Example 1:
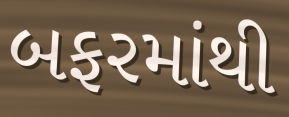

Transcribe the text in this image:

બફરમાંથી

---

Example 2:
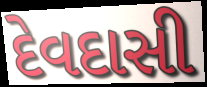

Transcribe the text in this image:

દેવદાસી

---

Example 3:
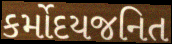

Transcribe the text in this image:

કર્મોદયજનિત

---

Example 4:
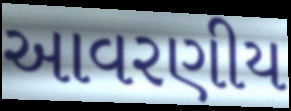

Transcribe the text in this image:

આવરણીય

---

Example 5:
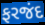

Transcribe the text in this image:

ફરજંદ